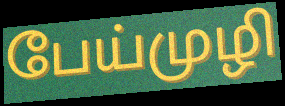
பேய்முழி